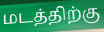
மடத்திற்கு